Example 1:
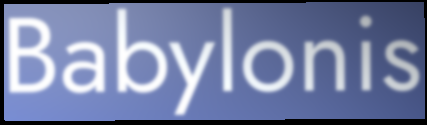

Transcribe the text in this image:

Babylonis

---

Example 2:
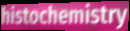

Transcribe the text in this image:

histochemistry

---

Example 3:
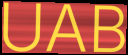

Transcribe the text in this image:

UAB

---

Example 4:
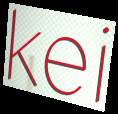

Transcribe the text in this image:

kei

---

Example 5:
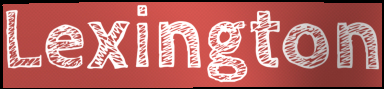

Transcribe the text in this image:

Lexington